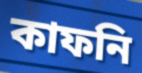
কাফনি